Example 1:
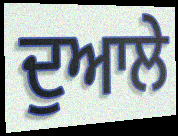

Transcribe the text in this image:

ਦੁਆਲੇ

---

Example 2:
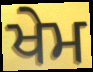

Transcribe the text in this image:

ਖੇਮ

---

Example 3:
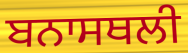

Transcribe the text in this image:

ਬਨਾਸਥਲੀ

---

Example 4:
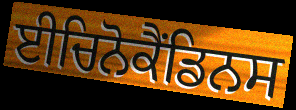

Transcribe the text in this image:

ਈਚਿਨੋਕੈਂਡਿਨਸ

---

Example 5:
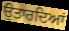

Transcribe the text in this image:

ਉਤਾਰਦਿਆਂ